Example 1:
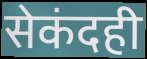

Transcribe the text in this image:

सेकंदही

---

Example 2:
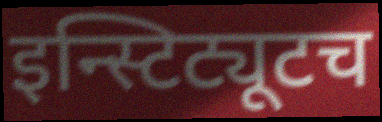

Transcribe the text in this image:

इन्स्टिट्यूटच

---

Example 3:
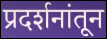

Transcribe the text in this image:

प्रदर्शनांतून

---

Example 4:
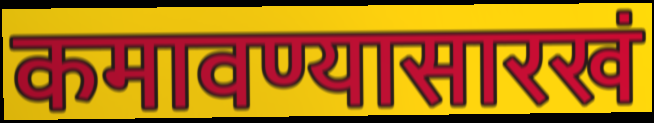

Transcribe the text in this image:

कमावण्यासारखं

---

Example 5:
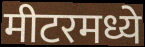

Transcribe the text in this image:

मीटरमध्ये